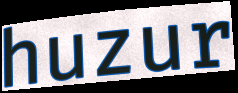
huzur